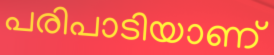
പരിപാടിയാണ്